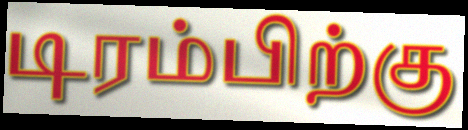
டிரம்பிற்கு